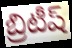
బ్రిటీష్